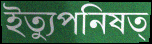
ইত্যুপনিষত্